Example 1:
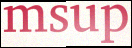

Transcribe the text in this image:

msup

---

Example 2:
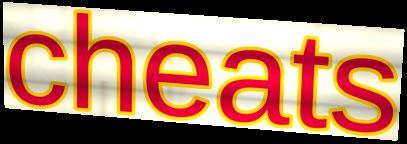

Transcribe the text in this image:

cheats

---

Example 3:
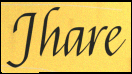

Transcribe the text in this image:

Jhare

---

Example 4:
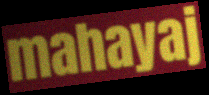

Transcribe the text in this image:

mahayaj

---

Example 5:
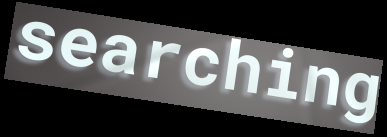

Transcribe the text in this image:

searching